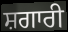
ਸ਼ਗਾਰੀ